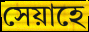
সেয়াহে